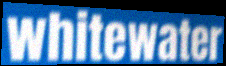
whitewater